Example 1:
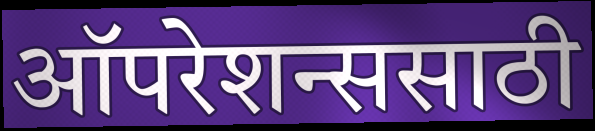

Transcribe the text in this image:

ऑपरेशन्ससाठी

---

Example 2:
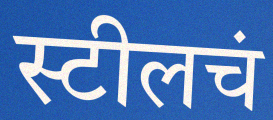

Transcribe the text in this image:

स्टीलचं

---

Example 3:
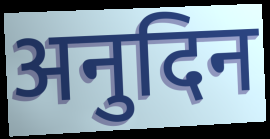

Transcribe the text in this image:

अनुदिन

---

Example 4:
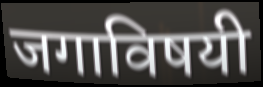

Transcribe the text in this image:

जगाविषयी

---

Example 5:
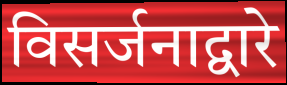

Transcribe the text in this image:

विसर्जनाद्वारे